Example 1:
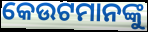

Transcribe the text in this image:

କେଉଟମାନଙ୍କୁ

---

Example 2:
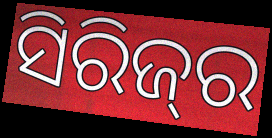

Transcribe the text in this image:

ସିରିଜ୍‌ର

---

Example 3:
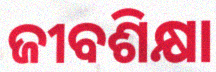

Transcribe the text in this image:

ଜୀବଶିକ୍ଷା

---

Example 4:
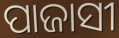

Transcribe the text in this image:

ପାଜାସୀ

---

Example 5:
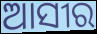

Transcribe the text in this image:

ଆସୀର